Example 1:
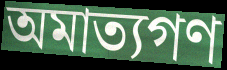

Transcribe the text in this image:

অমাত্যগণ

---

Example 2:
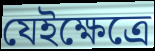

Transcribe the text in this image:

যেইক্ষেত্রে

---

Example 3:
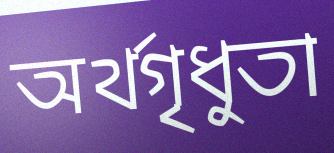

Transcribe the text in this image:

অর্থগৃধুতা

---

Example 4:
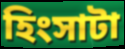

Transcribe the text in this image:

হিংসাটা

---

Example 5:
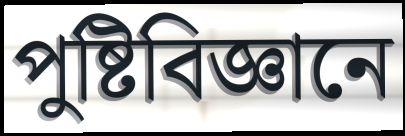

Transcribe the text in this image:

পুষ্টিবিজ্ঞানে